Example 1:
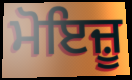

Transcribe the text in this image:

ਮੋਇਜ਼ੂ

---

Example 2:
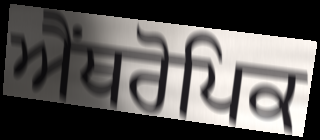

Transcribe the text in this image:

ਐਂਥਰੋਪਿਕ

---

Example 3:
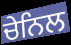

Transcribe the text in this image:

ਚੇਨਿਲ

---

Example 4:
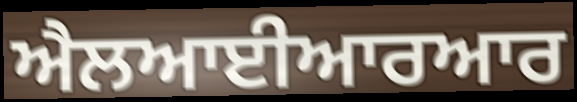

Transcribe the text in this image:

ਐਲਆਈਆਰਆਰ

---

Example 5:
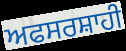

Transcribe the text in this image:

ਅਫਸਰਸ਼ਾਹੀ